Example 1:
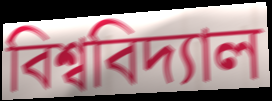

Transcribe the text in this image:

বিশ্ববিদ্যাল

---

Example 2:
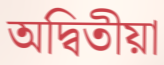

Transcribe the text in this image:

অদ্বিতীয়া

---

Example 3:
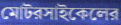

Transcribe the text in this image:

মোটরসাইকেলের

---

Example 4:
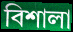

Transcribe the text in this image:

বিশালা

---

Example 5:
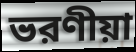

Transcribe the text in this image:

ভরণীয়া